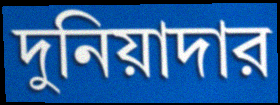
দুনিয়াদার